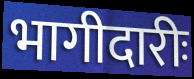
भागीदारीः